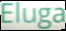
Eluga